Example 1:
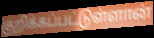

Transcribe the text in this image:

குறிக்கப்பட்டுள்ளான்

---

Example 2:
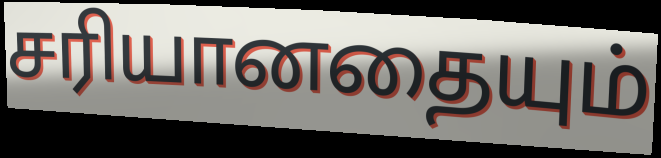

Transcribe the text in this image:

சரியானதையும்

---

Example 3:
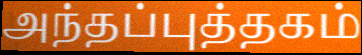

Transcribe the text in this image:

அந்தப்புத்தகம்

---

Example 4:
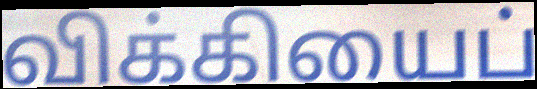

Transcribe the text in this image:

விக்கியைப்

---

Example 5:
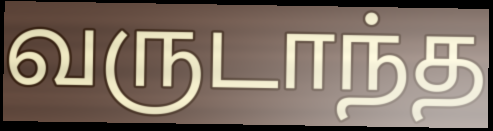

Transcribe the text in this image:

வருடாந்த